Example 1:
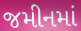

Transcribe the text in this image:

જમીનમાં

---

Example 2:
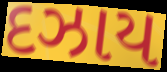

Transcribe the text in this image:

દઝાય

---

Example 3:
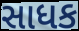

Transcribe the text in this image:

સાધક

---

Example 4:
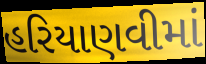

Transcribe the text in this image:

હરિયાણવીમાં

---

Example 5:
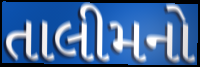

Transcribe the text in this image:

તાલીમનો